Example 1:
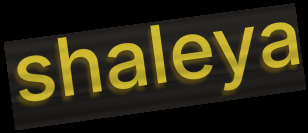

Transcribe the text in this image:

shaleya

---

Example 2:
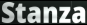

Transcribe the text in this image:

Stanza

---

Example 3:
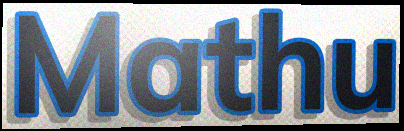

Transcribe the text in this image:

Mathu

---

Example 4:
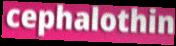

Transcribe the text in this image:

cephalothin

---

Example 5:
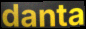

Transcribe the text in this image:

danta